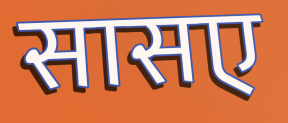
सासए